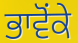
ਭਾਵੋਂਕੇ